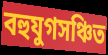
বহুযুগসঞ্চিত